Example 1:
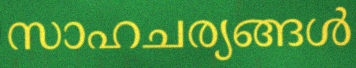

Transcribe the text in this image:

സാഹചര്യങ്ങൾ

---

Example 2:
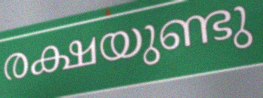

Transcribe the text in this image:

രക്ഷയുണ്ടു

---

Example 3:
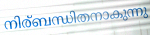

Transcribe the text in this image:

നിര്ബന്ധിതനാകുന്നു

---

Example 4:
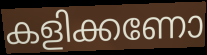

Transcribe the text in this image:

കളിക്കണോ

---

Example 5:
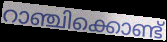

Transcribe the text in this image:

റാഞ്ചിക്കൊണ്ട്